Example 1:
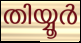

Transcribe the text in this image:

തിയ്യൂർ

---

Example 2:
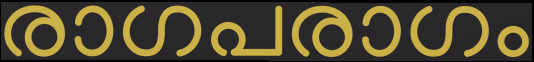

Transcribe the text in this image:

രാഗപരാഗം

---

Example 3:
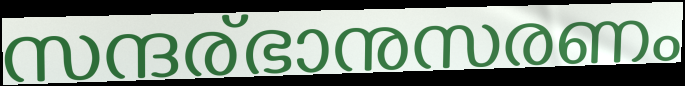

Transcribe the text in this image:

സന്ദര്ഭാനുസരണം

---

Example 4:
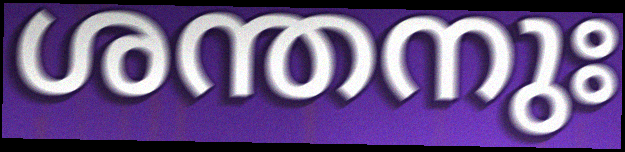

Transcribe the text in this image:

ശന്തനുഃ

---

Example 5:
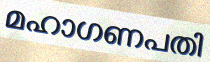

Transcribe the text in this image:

മഹാഗണപതി